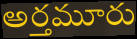
అర్తమూరు